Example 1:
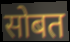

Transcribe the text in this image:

सोबत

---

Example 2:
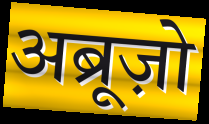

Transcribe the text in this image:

अब्रूज़ो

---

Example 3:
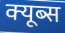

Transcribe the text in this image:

क्यूब्स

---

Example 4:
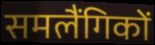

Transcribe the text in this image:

समलैंगिकों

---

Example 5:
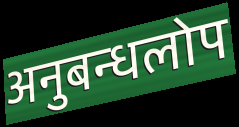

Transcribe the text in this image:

अनुबन्धलोप